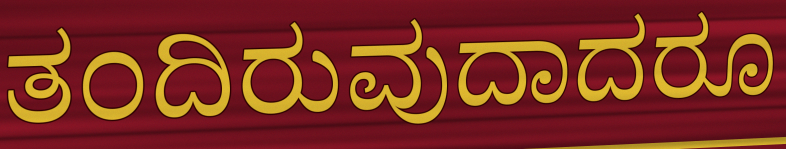
ತಂದಿರುವುದಾದರೂ